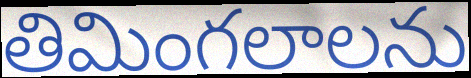
తిమింగలాలను